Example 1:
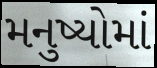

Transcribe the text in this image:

મનુષ્યોમાં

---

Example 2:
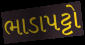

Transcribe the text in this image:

ભાડાપટ્ટો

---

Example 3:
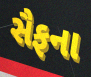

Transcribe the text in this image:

સૈફના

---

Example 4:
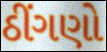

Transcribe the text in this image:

ઠીંગણો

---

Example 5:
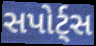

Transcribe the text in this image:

સપોર્ટ્સ